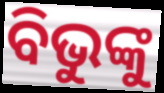
ବିଭୁଙ୍କୁ